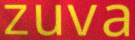
zuva